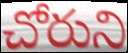
చోరుని